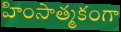
హింసాత్మకంగా